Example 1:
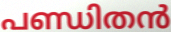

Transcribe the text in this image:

പണ്ഡിതൻ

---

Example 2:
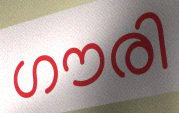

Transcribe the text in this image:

ഗൗരി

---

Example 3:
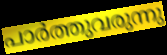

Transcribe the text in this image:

പാർത്തുവരുന്നു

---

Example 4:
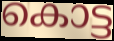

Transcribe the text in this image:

കൊട്ട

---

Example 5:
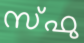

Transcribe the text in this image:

സ്ഫു